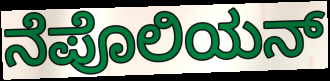
ನೆಪೊಲಿಯನ್